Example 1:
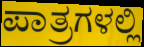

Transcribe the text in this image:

ಪಾತ್ರಗಳಲ್ಲಿ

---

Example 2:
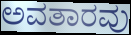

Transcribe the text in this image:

ಅವತಾರವು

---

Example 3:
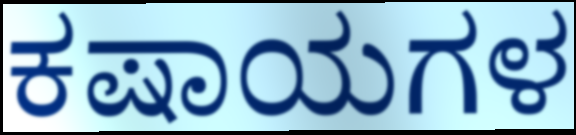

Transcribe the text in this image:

ಕಷಾಯಗಳ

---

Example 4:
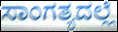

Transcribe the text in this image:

ಸಾಂಗತ್ಯದಲ್ಲೆ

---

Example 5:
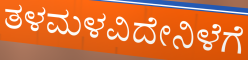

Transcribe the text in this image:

ತಳಮಳವಿದೇನಿಳೆಗೆ